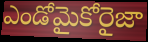
ఎండోమైకోరైజా